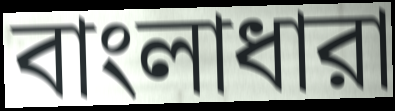
বাংলাধারা